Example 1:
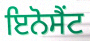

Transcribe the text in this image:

ਇਨੋਸੈਂਟ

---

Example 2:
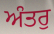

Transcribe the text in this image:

ਅੰਤਰੁ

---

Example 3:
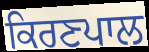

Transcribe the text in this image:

ਕਿਰਣਪਾਲ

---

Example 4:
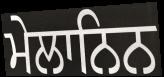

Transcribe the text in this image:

ਮੇਲਾਨਿਨ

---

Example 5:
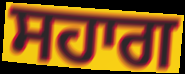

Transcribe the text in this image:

ਸਹਾਗ